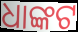
ଧାଙ୍କଟ